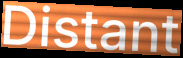
Distant